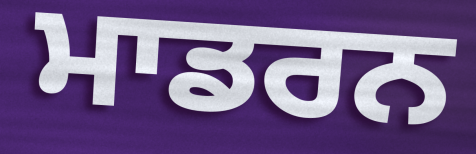
ਮਾਡਰਨ